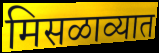
मिसळाव्यात